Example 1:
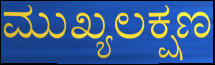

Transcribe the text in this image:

ಮುಖ್ಯಲಕ್ಷಣ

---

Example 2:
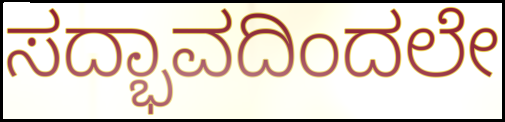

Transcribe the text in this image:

ಸದ್ಭಾವದಿಂದಲೇ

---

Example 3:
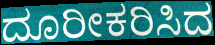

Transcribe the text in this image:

ದೂರೀಕರಿಸಿದ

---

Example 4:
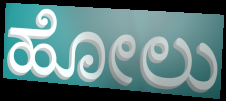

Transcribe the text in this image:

ಹೋಲು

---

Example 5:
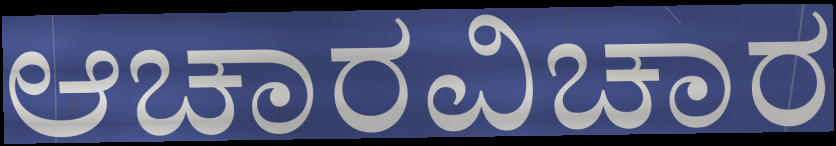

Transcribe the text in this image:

ಆಚಾರವಿಚಾರ